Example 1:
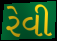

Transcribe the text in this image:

રેવી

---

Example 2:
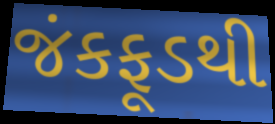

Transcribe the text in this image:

જંકફૂડથી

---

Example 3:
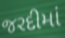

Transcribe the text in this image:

જરદીમાં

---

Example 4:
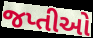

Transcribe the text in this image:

જપ્તીઓ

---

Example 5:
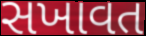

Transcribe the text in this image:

સખાવત